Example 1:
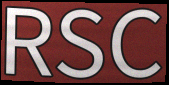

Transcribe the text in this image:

RSC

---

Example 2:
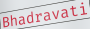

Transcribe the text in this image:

Bhadravati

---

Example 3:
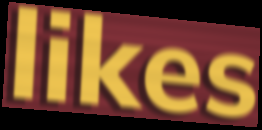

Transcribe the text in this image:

likes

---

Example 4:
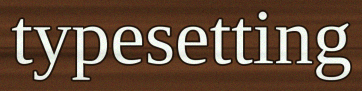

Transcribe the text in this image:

typesetting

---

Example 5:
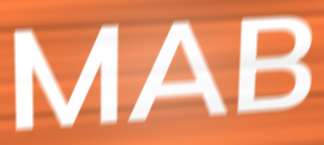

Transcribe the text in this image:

MAB